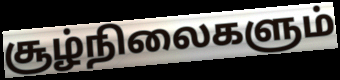
சூழ்நிலைகளும்